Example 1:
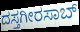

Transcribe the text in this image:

ದಸ್ತಗೀರಸಾಬ್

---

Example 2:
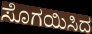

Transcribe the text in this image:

ಸೊಗಯಿಸಿದ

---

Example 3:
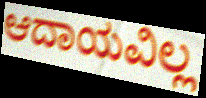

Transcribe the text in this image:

ಆದಾಯವಿಲ್ಲ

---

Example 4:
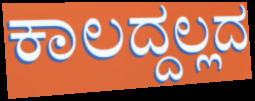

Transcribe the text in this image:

ಕಾಲದ್ದಲ್ಲದ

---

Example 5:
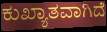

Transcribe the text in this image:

ಕುಖ್ಯಾತವಾಗಿದೆ